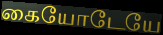
கையோடேயே